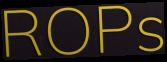
ROPs